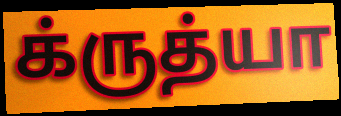
க்ருத்யா